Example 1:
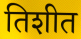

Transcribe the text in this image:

तिशीत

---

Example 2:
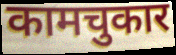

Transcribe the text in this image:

कामचुकार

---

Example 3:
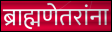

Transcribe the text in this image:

ब्राह्मणेतरांना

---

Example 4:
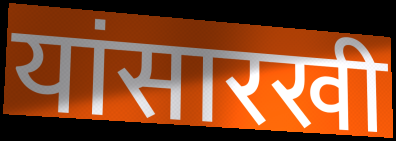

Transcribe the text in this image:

यांसारखी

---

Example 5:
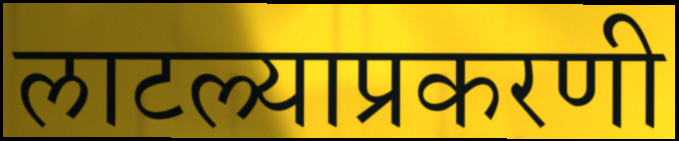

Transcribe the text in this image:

लाटल्याप्रकरणी